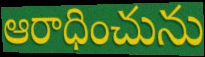
ఆరాధించును